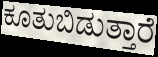
ಕೂತುಬಿಡುತ್ತಾರೆ